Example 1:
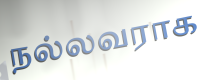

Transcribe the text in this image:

நல்லவராக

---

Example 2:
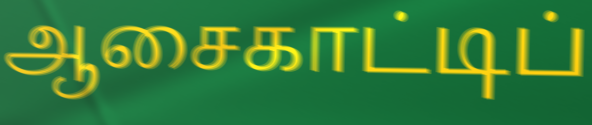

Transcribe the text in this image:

ஆசைகாட்டிப்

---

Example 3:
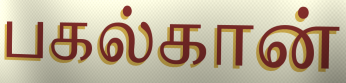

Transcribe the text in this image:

பகல்கான்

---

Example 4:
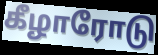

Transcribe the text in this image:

கீழாரோடு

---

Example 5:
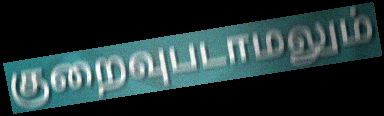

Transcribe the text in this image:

குறைவுபடாமலும்